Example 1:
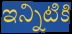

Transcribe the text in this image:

ఇన్నిటికి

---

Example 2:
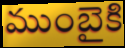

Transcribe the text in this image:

ముంబైకి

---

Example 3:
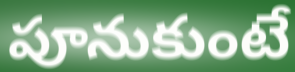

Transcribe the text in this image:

పూనుకుంటే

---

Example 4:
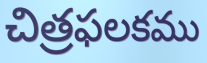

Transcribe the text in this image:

చిత్రఫలకము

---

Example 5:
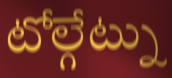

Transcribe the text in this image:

టోల్గేట్ను